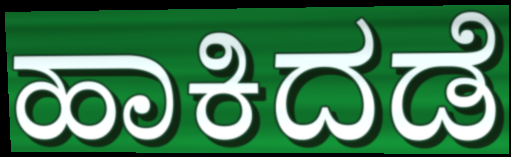
ಹಾಕಿದಡೆ